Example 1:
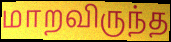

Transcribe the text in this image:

மாறவிருந்த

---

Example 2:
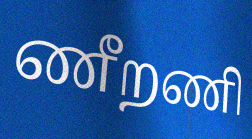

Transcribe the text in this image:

ணீறணி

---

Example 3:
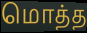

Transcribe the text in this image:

மொத்த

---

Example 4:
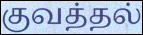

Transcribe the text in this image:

குவத்தல்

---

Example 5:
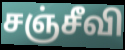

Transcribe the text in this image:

சஞ்சீவி